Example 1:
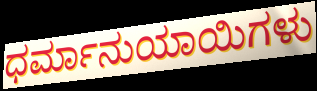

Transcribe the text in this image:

ಧರ್ಮಾನುಯಾಯಿಗಳು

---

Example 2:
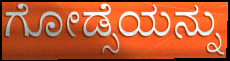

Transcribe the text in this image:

ಗೋಡ್ಸೆಯನ್ನು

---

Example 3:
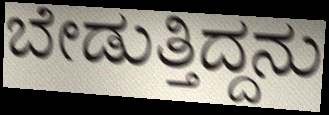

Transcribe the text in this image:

ಬೇಡುತ್ತಿದ್ದನು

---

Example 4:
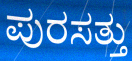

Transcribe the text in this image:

ಪುರಸತ್ತು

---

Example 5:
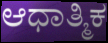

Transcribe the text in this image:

ಆಧಾತ್ಮಿಕ